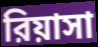
রিয়াসা